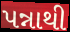
પન્નાથી